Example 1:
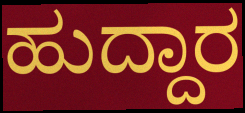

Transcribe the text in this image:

ಹುದ್ದಾರ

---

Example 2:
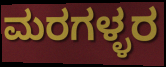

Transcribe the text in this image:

ಮರಗಳ್ಳರ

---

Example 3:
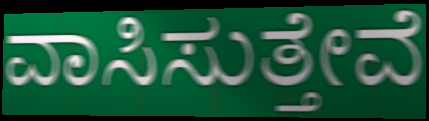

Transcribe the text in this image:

ವಾಸಿಸುತ್ತೇವೆ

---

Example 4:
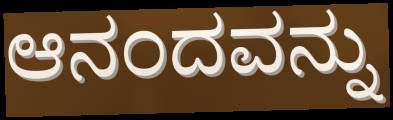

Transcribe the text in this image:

ಆನಂದವನ್ನು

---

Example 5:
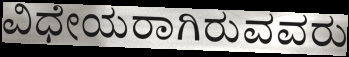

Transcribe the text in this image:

ವಿಧೇಯರಾಗಿರುವವರು